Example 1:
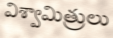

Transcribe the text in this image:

విశ్వామిత్రులు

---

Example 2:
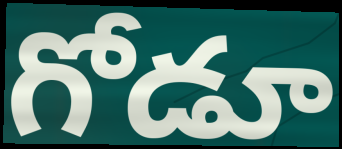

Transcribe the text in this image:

గోడూ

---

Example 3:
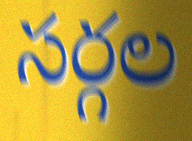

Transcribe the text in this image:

సర్గల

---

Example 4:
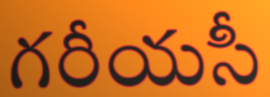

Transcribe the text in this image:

గరీయసీ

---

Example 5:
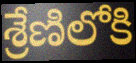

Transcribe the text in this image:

శ్రేణిలోకి